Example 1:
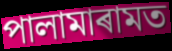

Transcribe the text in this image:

পালামাৰামত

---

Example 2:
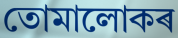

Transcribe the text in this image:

তোমালোকৰ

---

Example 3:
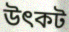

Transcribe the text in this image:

উৎকট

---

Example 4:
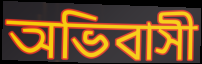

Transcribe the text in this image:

অভিবাসী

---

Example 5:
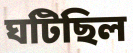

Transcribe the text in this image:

ঘটিছিল